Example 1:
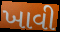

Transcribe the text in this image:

ખાવી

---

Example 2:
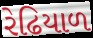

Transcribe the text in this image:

રેઢિયાળ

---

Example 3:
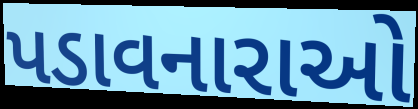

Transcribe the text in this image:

પડાવનારાઓ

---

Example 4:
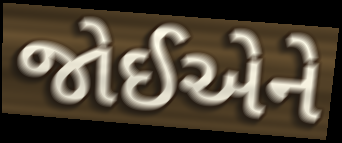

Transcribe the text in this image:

જોઈએને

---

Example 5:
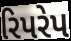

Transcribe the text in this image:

રિપરેપ